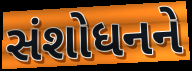
સંશોધનને